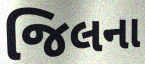
જિલના